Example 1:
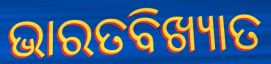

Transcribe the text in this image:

ଭାରତବିଖ୍ୟାତ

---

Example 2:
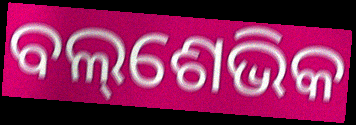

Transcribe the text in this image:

ବଲ୍‌ଶେଭିକ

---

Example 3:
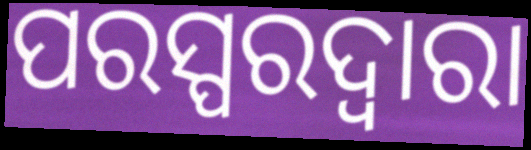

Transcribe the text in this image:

ପରସ୍ପରଦ୍ୱାରା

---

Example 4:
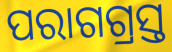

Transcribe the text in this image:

ପରାଗଗ୍ରସ୍ତ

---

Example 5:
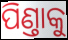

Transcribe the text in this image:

ପିଣ୍ତାକୁ